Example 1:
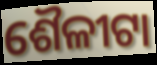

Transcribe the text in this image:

ଶୈଳୀଟା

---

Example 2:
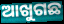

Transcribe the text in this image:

ଆଖୁଗଛ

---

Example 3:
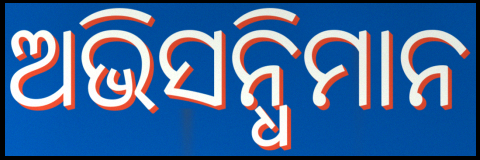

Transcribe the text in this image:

ଅଭିସନ୍ଧିମାନ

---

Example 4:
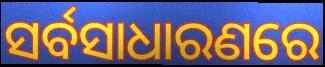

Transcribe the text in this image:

ସର୍ବସାଧାରଣରେ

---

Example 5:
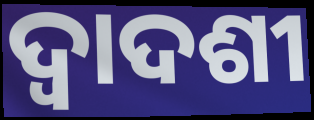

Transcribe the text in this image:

ଦ୍ବାଦଶୀ